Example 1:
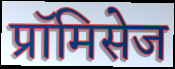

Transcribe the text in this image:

प्रॉमिसेज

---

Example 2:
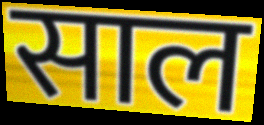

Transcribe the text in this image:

साल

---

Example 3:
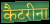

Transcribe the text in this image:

कैटरीना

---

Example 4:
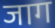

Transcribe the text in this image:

जाग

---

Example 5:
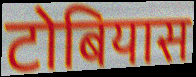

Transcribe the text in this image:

टोबियास